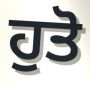
ਹੁਤੋ